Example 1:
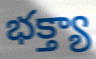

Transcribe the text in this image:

భక్త్యా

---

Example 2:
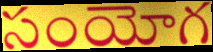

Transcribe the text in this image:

సంయోగ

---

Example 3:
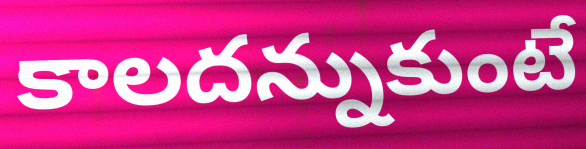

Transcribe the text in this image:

కాలదన్నుకుంటే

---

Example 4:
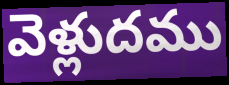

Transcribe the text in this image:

వెళ్లుదము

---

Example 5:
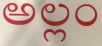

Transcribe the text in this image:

అల్లం